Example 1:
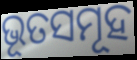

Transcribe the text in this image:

ଭୂତସମୂହ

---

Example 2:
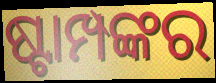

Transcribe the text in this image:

ଷ୍ଟାମ୍ପଙ୍କର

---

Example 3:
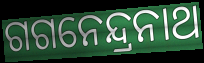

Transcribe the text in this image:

ଗଗନେନ୍ଦ୍ରନାଥ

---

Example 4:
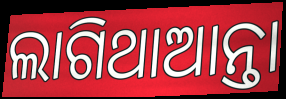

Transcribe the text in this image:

ଲାଗିଥାଆନ୍ତା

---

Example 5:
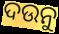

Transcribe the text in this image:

ଦଉନୁ